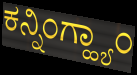
ಕನ್ನಿಂಗ್ಹ್ಯಾಂ